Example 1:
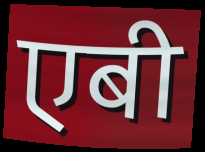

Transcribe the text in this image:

एबी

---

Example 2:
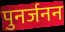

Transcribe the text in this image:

पुनर्जनन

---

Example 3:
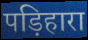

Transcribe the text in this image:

पड़िहारा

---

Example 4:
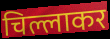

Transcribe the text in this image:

चिल्लाकर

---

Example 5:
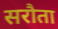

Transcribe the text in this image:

सरौता